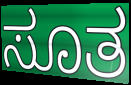
ಸೂತ